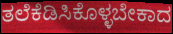
ತಲೆಕೆಡಿಸಿಕೊಳ್ಳಬೇಕಾದ